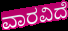
ವಾರವಿದೆ